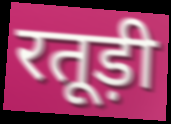
रतूड़ी